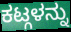
ಕಟ್ಗಳನ್ನು